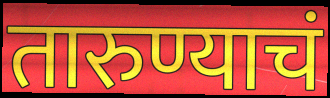
तारुण्याचं